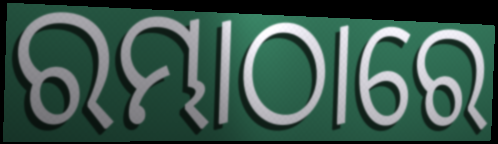
ରମ୍ଭାଠାରେ